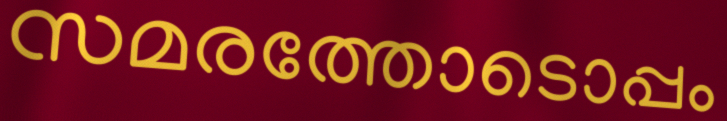
സമരത്തോടൊപ്പം